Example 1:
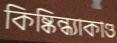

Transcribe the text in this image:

কিষ্কিন্ধ্যাকাণ্ড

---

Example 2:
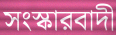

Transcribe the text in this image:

সংস্কারবাদী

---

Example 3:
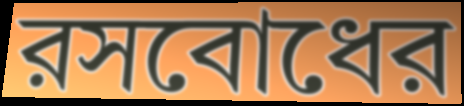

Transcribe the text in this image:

রসবোধের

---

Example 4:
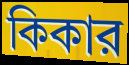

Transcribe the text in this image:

কিকার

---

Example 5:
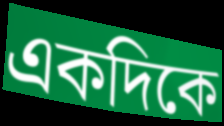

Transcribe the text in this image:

একদিকে